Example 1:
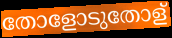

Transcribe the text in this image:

തോളോടുതോള്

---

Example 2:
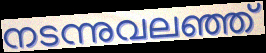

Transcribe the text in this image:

നടന്നുവലഞ്ഞ്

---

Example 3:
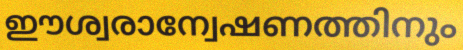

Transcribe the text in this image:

ഈശ്വരാന്വേഷണത്തിനും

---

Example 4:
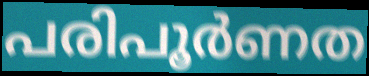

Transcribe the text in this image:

പരിപൂർണത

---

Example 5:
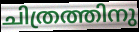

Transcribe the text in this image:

ചിത്രത്തിനു